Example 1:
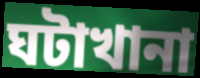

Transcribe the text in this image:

ঘটাখানা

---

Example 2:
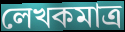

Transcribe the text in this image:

লেখকমাত্র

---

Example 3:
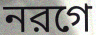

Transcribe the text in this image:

নরগে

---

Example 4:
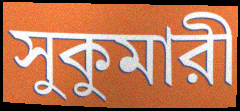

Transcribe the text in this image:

সুকুমারী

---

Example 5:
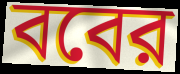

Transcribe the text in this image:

ববের